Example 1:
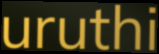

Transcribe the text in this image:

uruthi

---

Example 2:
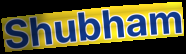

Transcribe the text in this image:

Shubham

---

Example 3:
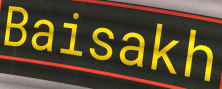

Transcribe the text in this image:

Baisakh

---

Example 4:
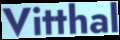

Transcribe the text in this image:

Vitthal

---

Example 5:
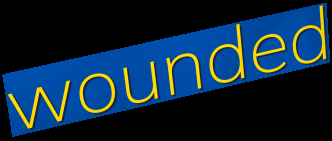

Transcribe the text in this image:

wounded